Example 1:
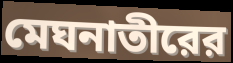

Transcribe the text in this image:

মেঘনাতীরের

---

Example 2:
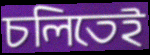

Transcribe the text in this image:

চলিতেই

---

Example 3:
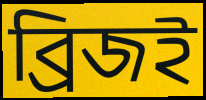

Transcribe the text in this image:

ব্রিজই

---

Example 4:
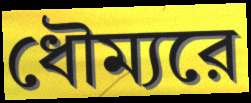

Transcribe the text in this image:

ধৌম্যরে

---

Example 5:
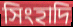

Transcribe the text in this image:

সিংহাদি